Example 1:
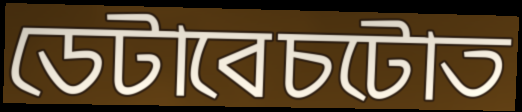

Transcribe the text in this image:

ডেটাবেচটোত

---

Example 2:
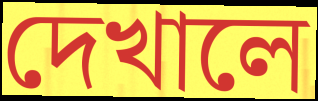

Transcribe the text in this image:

দেখালে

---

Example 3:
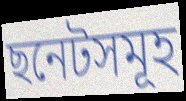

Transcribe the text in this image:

ছনেটসমূহ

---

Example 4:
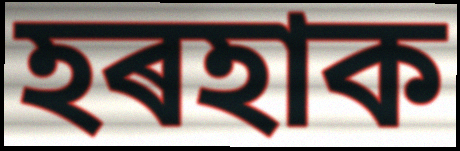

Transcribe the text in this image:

হৰহাক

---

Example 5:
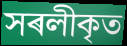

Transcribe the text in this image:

সৰলীকৃত